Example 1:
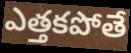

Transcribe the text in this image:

ఎత్తకపోతే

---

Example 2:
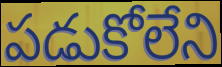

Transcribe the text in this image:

పడుకోలేని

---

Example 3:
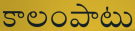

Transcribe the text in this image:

కాలంపాటు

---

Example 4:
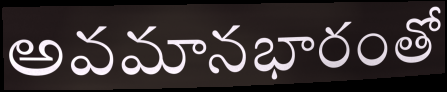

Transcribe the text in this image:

అవమానభారంతో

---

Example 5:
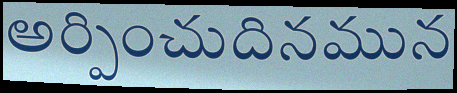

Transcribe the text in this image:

అర్పించుదినమున